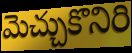
మెచ్చుకొనిరి